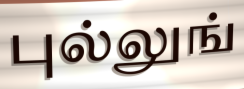
புல்லுங்